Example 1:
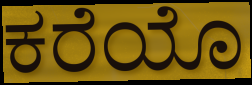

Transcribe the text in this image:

ಕರೆಯೊ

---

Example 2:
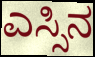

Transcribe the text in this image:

ಎಸ್ಸಿನ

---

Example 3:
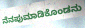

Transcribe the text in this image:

ನೆನಪುಮಾಡಿಕೊಂಡನು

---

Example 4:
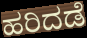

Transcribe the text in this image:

ಹರಿದಡೆ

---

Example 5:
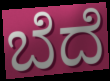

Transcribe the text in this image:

ಬೆದೆ